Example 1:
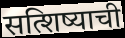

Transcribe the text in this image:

सत्शिष्याची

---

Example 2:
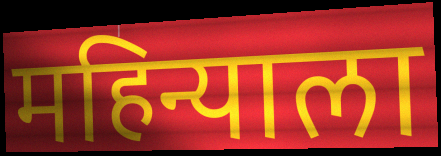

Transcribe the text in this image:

महिन्याला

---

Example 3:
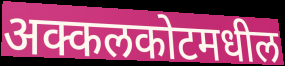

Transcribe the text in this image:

अक्कलकोटमधील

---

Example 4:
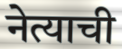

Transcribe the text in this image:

नेत्याची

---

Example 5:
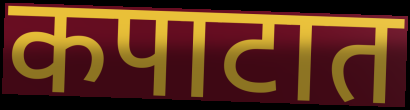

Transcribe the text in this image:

कपाटात